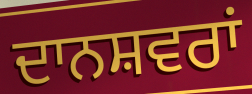
ਦਾਨਸ਼ਵਰਾਂ